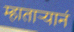
म्हातार्‍यानं